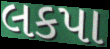
લકપા